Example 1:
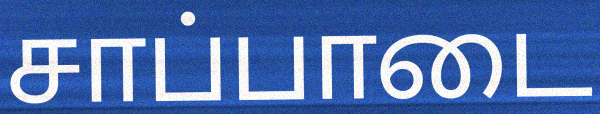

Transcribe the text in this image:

சாப்பாடை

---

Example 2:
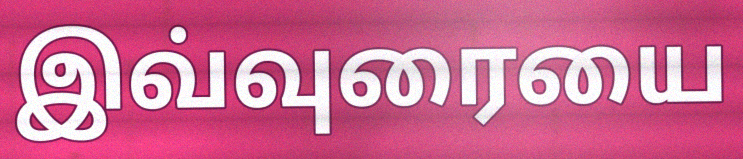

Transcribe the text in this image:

இவ்வுரையை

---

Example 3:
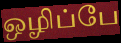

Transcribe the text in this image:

ஒழிப்பே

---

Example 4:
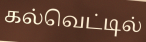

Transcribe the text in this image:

கல்வெட்டில்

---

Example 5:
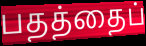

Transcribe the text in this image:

பதத்தைப்